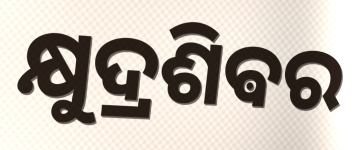
କ୍ଷୁଦ୍ରଶିଵର